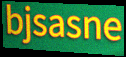
bjsasne